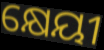
କ୍ଷେୟୀ